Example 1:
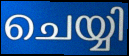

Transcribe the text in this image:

ചെയ്യി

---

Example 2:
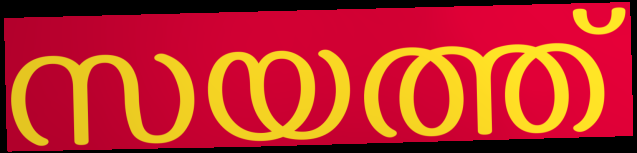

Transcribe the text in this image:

സയത്ത്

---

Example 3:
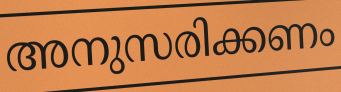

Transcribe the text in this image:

അനുസരിക്കണം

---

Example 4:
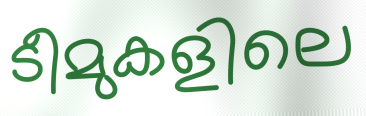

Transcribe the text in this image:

ടീമുകളിലെ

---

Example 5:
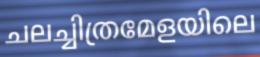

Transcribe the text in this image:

ചലച്ചിത്രമേളയിലെ